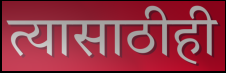
त्यासाठीही